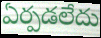
ఏర్పడలేదు